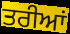
ਤਰੀਆਂ